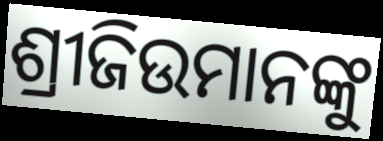
ଶ୍ରୀଜିଉମାନଙ୍କୁ